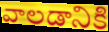
వాలడానికి